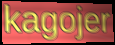
kagojer